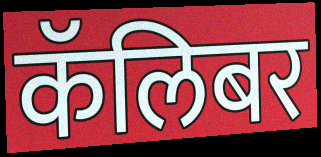
कॅलिबर